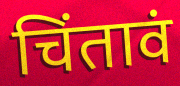
चिंतावं